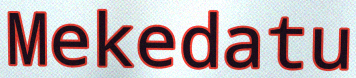
Mekedatu